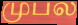
முபல